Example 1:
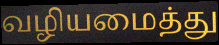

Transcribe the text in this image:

வழியமைத்து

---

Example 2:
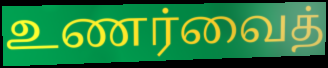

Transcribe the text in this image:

உணர்வைத்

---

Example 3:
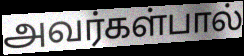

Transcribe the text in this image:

அவர்கள்பால்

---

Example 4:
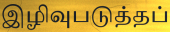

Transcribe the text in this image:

இழிவுபடுத்தப்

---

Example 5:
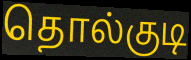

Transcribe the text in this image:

தொல்குடி